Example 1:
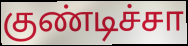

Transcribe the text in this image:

குண்டிச்சா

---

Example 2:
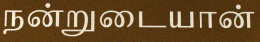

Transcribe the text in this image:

நன்றுடையான்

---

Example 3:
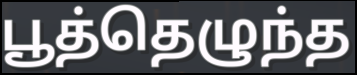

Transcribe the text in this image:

பூத்தெழுந்த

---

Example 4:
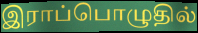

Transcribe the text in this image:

இராப்பொழுதில்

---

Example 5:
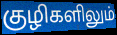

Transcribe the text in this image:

குழிகளிலும்